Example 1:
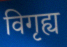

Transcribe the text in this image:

विगृह्य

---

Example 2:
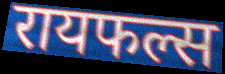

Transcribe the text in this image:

रायफल्स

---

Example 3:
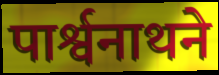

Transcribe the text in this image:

पार्श्वनाथने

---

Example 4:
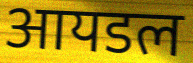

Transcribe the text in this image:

आयडल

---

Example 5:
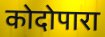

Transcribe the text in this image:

कोदोपारा